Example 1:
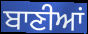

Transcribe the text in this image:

ਬਾਣੀਆਂ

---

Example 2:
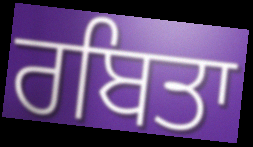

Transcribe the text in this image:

ਰਬਿਤਾ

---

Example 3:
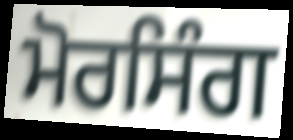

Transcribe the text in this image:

ਮੋਰਸਿੰਗ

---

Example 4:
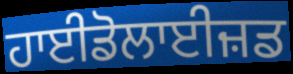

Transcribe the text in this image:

ਹਾਈਡੋਲਾਈਜ਼ਡ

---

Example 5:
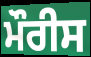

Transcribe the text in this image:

ਮੌਰੀਸ